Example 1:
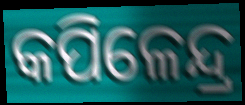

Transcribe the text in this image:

କପିଳେନ୍ଦ୍ର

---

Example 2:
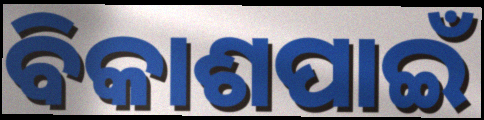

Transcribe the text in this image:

ବିକାଶପାଇଁ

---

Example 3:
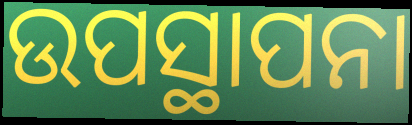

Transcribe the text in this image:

ଉପସ୍ଥାପନା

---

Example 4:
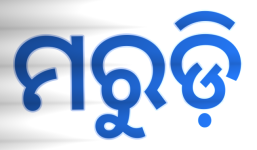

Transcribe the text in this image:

ମରୁଡ଼ି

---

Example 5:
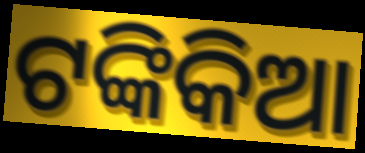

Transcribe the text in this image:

ଟଙ୍କିକିଆ